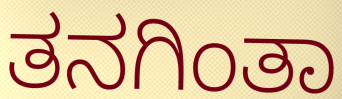
ತನಗಿಂತಾ